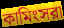
কামিংসরা